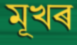
মূখৰ